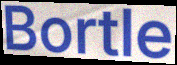
Bortle